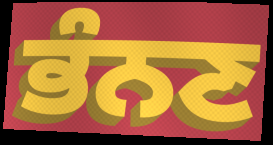
ਭੰਨਣ